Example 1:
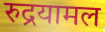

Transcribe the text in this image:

रुद्रयामल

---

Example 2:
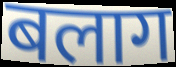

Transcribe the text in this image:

बलाग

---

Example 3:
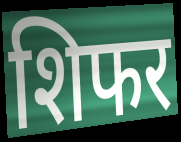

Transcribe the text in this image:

शिफर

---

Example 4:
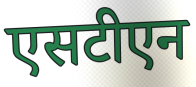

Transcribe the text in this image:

एसटीएन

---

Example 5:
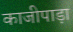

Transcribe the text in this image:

काजीपाड़ा